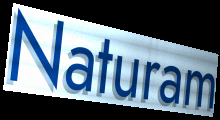
Naturam